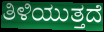
ತಿಳಿಯುತ್ತದೆ